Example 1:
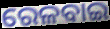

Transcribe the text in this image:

ରେଳବାଇ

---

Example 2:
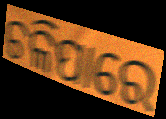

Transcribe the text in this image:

ଚଳିପାରେ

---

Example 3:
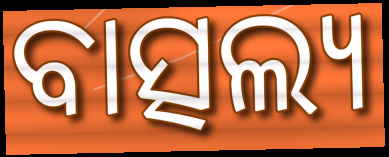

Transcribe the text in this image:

ବାତ୍ସଲ୍ଯ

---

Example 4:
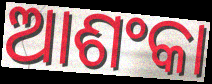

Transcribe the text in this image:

ଆଶଂକା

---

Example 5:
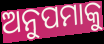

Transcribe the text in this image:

ଅନୁପମାକୁ